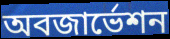
অবজার্ভেশন